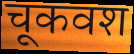
चूकवश